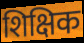
शिक्षिक